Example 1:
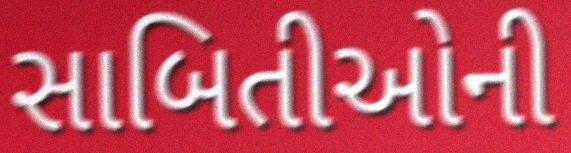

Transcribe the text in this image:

સાબિતીઓની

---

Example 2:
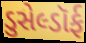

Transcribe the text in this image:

ડુસેલ્ડૉર્ફ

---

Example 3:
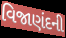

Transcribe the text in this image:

વિજાણંદની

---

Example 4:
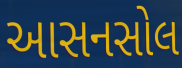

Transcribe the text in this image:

આસનસોલ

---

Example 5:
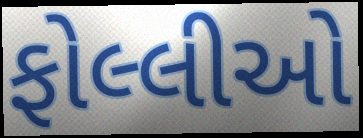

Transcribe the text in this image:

ફોલ્લીઓ